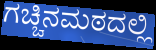
ಗಚ್ಚಿನಮಠದಲ್ಲಿ